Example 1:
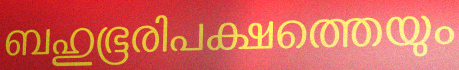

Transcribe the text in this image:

ബഹുഭൂരിപക്ഷത്തെയും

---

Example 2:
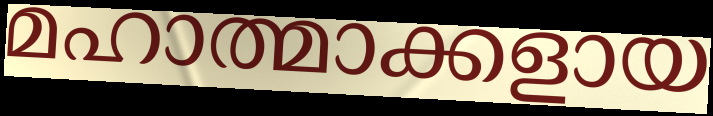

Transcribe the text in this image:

മഹാത്മാക്കളായ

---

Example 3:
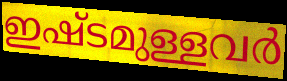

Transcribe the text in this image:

ഇഷ്ടമുള്ളവർ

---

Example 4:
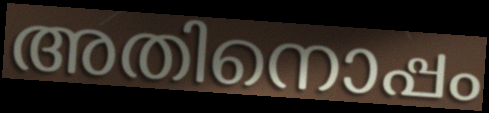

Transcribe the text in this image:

അതിനൊപ്പം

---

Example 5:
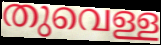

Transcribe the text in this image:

തുവെള്ള